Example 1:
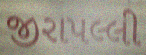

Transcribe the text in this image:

જીરાપલ્લી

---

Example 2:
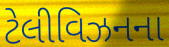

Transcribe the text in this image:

ટેલીવિઝનના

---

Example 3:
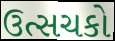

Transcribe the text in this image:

ઉત્સચકો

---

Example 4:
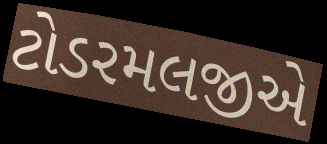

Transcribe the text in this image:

ટોડરમલજીએ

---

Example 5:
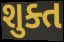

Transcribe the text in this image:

શુક્ત